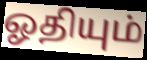
ஓதியும்